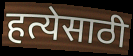
हत्येसाठी